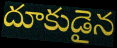
దూకుడైన